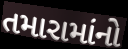
તમારામાંનો